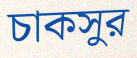
চাকসুর